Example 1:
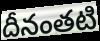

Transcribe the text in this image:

దీనంతటి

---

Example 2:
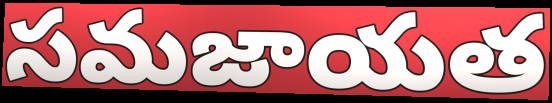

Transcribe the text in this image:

సమజాయత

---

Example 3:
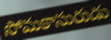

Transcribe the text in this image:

సోమకాసురుడు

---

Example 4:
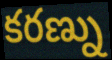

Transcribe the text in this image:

కరణ్ను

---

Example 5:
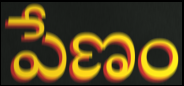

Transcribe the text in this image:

పేణం